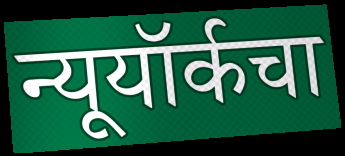
न्यूयॉर्कचा